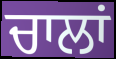
ਚਾਲਾਂ